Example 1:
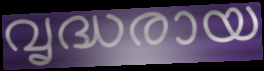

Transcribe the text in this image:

വൃദ്ധരായ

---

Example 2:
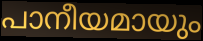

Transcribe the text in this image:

പാനീയമായും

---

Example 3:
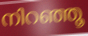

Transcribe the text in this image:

നിറഞ്ഞൂ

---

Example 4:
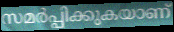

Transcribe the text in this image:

സമർപ്പിക്കുകയാണ്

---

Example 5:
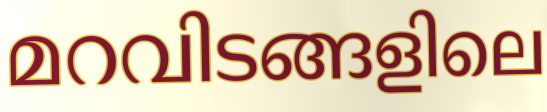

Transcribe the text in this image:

മറവിടങ്ങളിലെ